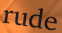
rude